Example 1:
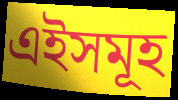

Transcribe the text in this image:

এইসমূহ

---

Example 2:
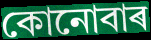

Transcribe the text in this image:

কোনোবাৰ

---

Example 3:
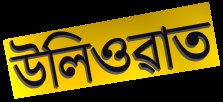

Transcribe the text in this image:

উলিওৱাত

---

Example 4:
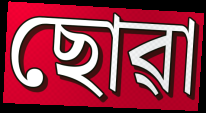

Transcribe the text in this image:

ছোৱা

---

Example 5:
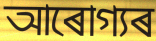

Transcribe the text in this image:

আৰোগ্যৰ